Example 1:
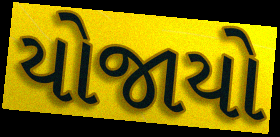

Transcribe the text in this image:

યોજાયો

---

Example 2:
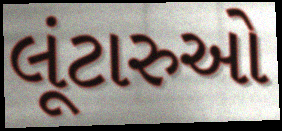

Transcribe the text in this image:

લૂંટારુઓ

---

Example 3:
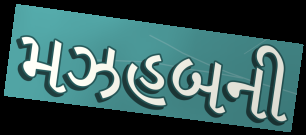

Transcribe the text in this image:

મઝહબની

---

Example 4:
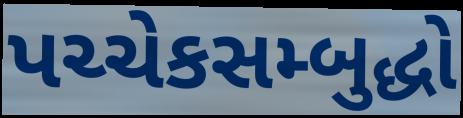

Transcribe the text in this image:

પચ્ચેકસમ્બુદ્ધો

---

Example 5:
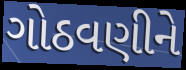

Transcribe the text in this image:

ગોઠવણીને